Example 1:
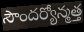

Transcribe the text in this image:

సౌందర్యోన్మత్త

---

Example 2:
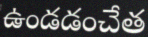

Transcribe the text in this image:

ఉండడంచేత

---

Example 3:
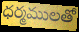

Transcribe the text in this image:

ధర్మములతో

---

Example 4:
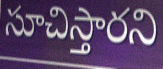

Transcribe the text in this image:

సూచిస్తారని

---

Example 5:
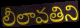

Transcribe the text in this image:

లీలావతిని